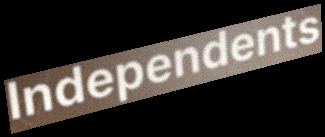
Independents